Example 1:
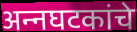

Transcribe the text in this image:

अन्नघटकांचे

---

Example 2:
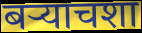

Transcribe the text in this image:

बऱ्याचशा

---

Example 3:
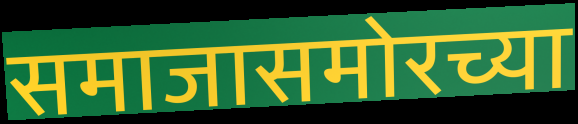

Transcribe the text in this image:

समाजासमोरच्या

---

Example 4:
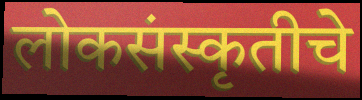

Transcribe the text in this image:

लोकसंस्कृतीचे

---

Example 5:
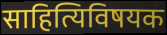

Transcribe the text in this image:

साहित्यिविषयक